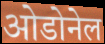
ओडोनेल